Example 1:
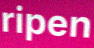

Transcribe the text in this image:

ripen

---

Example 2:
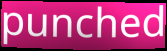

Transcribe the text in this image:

punched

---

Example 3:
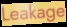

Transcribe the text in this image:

Leakage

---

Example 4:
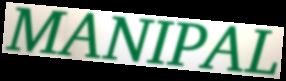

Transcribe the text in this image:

MANIPAL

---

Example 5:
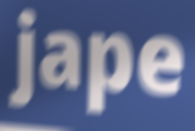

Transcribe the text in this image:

jape